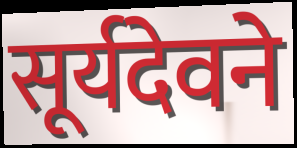
सूर्यदेवने